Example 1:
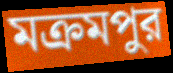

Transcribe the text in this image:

মক্রমপুর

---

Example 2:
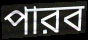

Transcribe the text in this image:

পারব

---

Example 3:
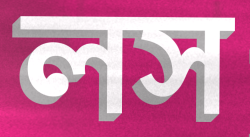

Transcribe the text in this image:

লস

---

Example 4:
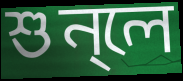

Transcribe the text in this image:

শুন্‌লে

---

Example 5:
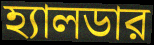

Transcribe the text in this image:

হ্যালডার